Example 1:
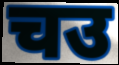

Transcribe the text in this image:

चउ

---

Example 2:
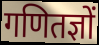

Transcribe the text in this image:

गणितज्ञों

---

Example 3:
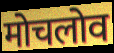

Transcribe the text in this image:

मोचलोव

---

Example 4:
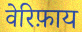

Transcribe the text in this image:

वेरिफ़ाय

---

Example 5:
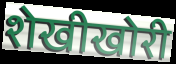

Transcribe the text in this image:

शेखीखोरी